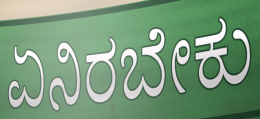
ಏನಿರಬೇಕು